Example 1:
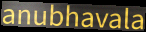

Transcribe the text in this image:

anubhavala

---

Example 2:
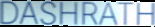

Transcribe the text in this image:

DASHRATH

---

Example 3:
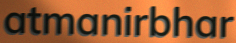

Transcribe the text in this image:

atmanirbhar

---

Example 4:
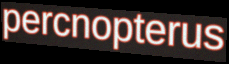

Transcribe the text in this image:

percnopterus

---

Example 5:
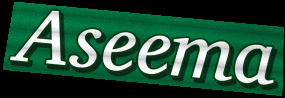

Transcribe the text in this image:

Aseema